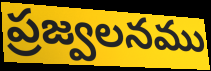
ప్రజ్వలనము